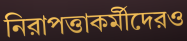
নিরাপত্তাকর্মীদেরও